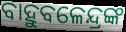
ବାହୁବଳେନ୍ଦ୍ରଙ୍କ